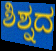
ಶಿಶ್ನದ